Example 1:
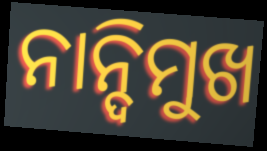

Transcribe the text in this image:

ନାନ୍ଦିମୁଖ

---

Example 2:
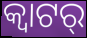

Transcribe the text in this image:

କ୍ୱାଟର୍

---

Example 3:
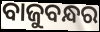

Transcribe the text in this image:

ବାଜୁବନ୍ଧର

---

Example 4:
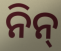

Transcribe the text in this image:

ନିନ୍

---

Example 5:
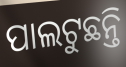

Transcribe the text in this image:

ପାଲଟୁଛନ୍ତି